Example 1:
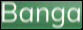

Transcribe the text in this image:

Banga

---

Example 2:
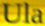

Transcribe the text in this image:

Ula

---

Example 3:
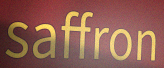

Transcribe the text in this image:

saffron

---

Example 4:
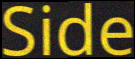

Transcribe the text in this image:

Side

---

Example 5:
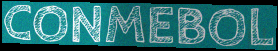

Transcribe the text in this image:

CONMEBOL